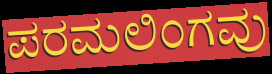
ಪರಮಲಿಂಗವು